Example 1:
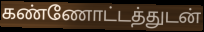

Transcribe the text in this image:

கண்ணோட்டத்துடன்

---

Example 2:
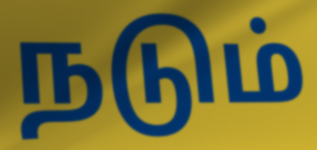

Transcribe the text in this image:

நடும்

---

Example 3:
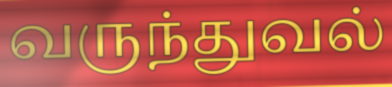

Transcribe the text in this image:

வருந்துவல்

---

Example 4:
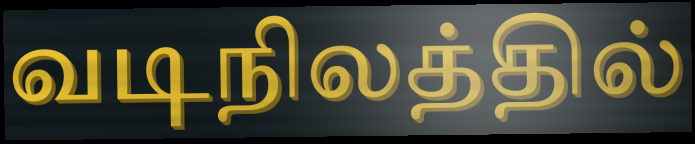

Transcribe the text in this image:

வடிநிலத்தில்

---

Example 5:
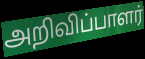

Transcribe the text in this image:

அறிவிப்பாளர்